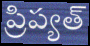
ప్రిప్యత్